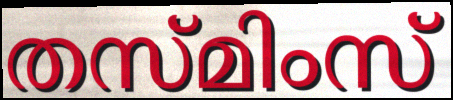
തസ്മിംസ്